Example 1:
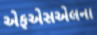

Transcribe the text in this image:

એફએસએલના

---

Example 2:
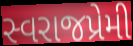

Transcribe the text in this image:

સ્વરાજપ્રેમી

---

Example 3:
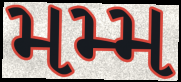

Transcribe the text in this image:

મમ્મ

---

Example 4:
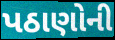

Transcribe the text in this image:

પઠાણોની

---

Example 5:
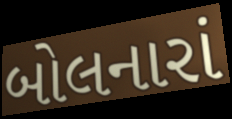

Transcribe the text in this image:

બોલનારાં